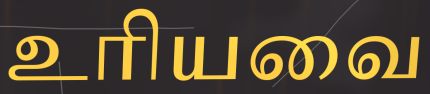
உரியவை